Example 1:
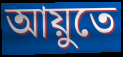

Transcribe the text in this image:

আয়ুতে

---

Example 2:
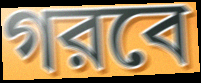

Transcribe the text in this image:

গরবে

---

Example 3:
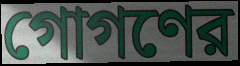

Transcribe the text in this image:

গোগণের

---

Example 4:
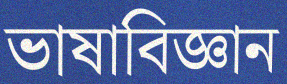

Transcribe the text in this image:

ভাষাবিজ্ঞান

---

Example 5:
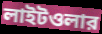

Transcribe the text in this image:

লাইটওলার